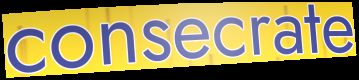
consecrate